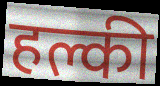
हल्‍की